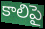
కాలిపై